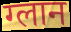
ग्लान